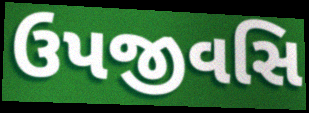
ઉપજીવસિ